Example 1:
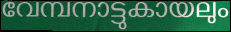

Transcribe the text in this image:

വേമ്പനാട്ടുകായലും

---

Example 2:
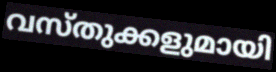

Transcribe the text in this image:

വസ്തുക്കളുമായി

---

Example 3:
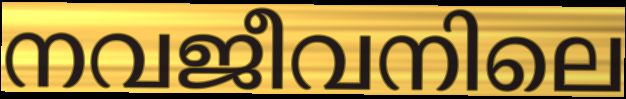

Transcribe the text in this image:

നവജീവനിലെ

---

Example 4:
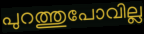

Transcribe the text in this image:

പുറത്തുപോവില്ല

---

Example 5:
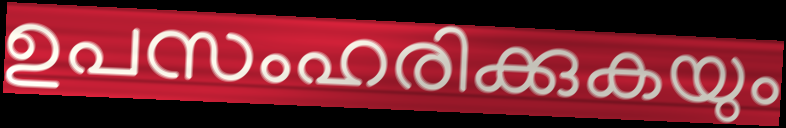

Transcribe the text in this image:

ഉപസംഹരിക്കുകയും